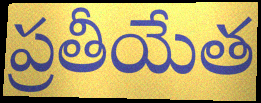
ప్రతీయేత